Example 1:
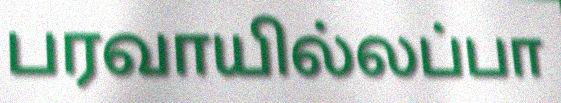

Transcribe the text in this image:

பரவாயில்லப்பா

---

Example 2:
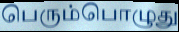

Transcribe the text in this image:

பெரும்பொழுது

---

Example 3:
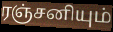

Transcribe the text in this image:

ரஞ்சனியும்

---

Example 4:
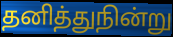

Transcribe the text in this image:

தனித்துநின்று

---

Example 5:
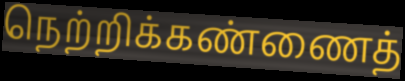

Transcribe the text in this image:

நெற்றிக்கண்ணைத்